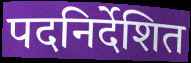
पदनिर्देशित